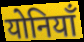
योनियाँ